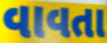
વાવતા